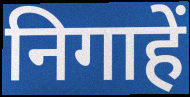
निगाहें